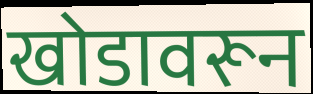
खोडावरून